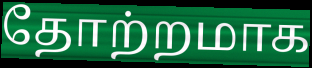
தோற்றமாக